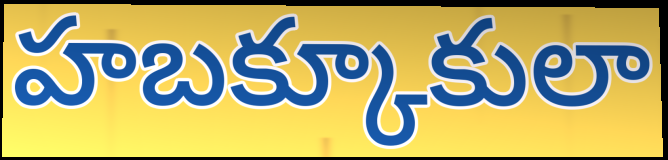
హబక్కూకులా